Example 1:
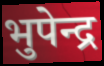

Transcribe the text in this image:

भुपेन्द्र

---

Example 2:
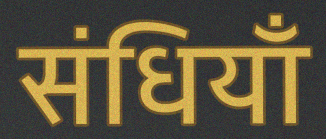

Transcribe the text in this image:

संधियाँ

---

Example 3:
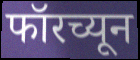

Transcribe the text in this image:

फॉरच्यून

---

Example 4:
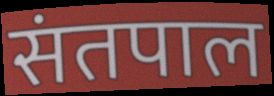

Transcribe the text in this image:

संतपाल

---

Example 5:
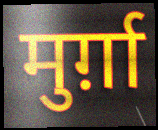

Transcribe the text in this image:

मुर्ग़ा